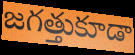
జగత్తుకూడా